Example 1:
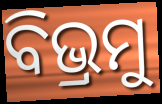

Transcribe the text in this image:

ବିଭ୍ରମୁ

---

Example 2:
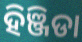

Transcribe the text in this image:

ହିଞ୍ଜିଡା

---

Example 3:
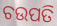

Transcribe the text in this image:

ଚଉପତି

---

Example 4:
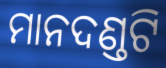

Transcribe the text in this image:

ମାନଦଣ୍ଡଟି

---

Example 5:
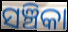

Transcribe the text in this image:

ସଞ୍ଚିକା